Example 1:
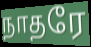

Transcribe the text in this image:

நாதரே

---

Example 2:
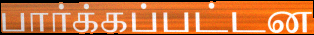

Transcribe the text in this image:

பார்க்கப்பட்டன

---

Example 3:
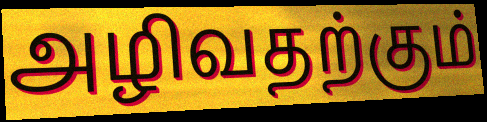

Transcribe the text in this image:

அழிவதற்கும்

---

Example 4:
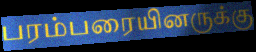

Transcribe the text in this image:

பரம்பரையினருக்கு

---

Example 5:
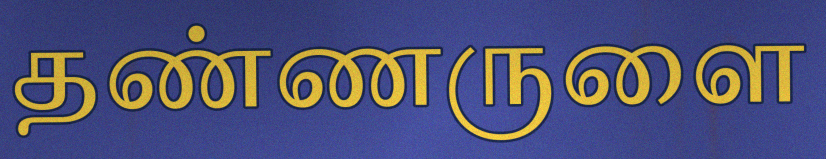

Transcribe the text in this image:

தண்ணருளை